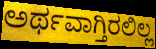
ಅರ್ಥವಾಗ್ತಿರಲಿಲ್ಲ